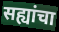
सह्यांचा